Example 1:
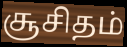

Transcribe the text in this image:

சூசிதம்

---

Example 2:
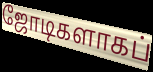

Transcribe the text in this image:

ஜோடிகளாகப்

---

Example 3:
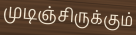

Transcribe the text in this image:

முடிஞ்சிருக்கும்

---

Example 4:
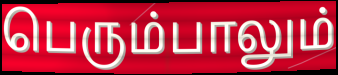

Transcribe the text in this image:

பெரும்பாலும்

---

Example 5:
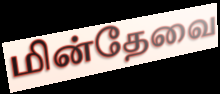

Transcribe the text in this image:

மின்தேவை